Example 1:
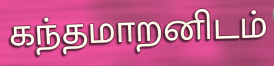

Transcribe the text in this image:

கந்தமாறனிடம்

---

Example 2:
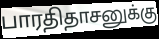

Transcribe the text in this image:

பாரதிதாசனுக்கு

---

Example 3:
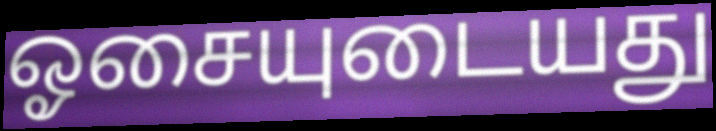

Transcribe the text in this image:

ஓசையுடையது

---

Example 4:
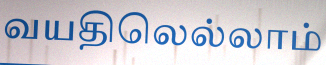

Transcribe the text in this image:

வயதிலெல்லாம்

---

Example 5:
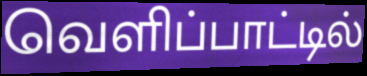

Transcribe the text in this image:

வெளிப்பாட்டில்